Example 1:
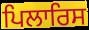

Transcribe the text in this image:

ਪਿਲਾਰਿਸ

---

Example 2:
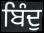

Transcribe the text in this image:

ਬਿੰਦੁ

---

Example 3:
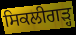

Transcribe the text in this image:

ਸਿਕਲੀਗੜ੍ਹ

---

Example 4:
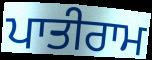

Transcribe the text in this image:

ਪਾਤੀਰਾਮ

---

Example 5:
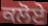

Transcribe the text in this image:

ਕਲੋਏ